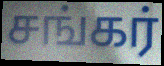
சங்கர்